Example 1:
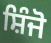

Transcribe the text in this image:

ਸ਼ਿੰਜੋ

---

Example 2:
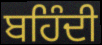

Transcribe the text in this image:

ਬਹਿੰਦੀ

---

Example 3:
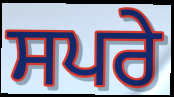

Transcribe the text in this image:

ਸਪਰੇ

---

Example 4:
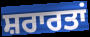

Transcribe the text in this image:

ਸ਼ਰਾਰਤਾਂ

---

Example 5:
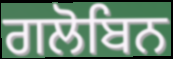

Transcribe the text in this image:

ਗਲੋਬਿਨ